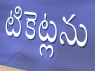
టికెట్లను